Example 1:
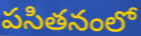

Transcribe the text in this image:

పసితనంలో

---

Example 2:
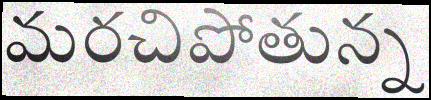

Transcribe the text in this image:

మరచిపోతున్న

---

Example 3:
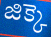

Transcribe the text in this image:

జిక్కె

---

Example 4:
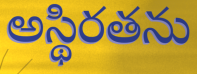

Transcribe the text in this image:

అస్థిరతను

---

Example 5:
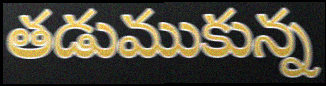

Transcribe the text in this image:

తడుముకున్న